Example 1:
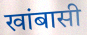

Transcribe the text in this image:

खांबासी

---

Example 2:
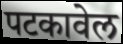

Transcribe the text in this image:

पटकावेल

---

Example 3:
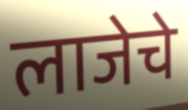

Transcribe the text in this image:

लाजेचे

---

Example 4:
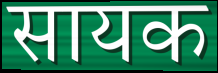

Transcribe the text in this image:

सायक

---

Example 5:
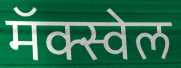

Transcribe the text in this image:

मॅक्स्वेल